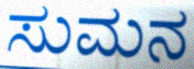
ಸುಮನ